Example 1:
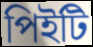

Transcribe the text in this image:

পিইটি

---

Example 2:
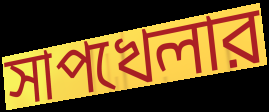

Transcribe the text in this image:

সাপখেলার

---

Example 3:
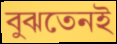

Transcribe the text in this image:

বুঝতেনই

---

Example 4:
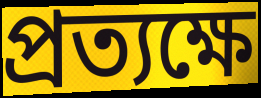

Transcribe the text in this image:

প্রত্যক্ষে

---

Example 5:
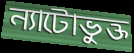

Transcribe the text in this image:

ন্যাটোভুক্ত